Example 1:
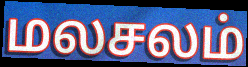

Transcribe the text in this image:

மலசலம்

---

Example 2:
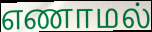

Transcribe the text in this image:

எணாமல்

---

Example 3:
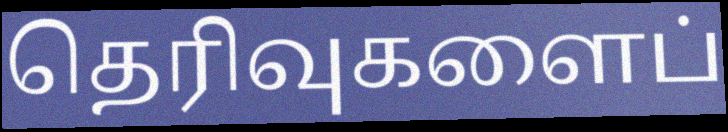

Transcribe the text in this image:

தெரிவுகளைப்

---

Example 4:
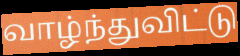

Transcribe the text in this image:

வாழ்ந்துவிட்டு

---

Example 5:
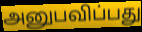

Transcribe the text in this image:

அனுபவிப்பது